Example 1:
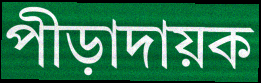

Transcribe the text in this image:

পীড়াদায়ক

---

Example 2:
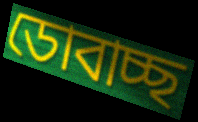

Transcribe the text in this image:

ডোবাচ্ছ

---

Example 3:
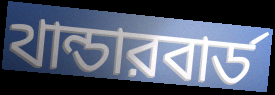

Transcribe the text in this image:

থান্ডারবার্ড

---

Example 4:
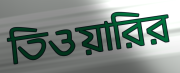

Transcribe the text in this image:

তিওয়ারির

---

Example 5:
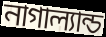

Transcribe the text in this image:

নাগাল্যান্ড